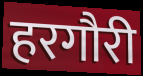
हरगौरी